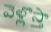
వెళ్లొస్తా